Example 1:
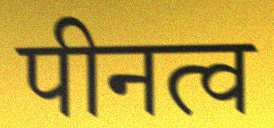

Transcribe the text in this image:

पीनत्व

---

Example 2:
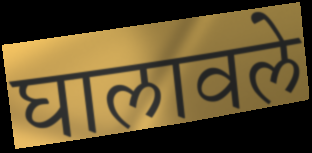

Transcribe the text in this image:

घालावले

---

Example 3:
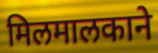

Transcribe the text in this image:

मिलमालकाने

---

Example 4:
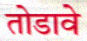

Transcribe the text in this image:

तोडावे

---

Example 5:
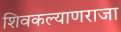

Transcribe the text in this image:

शिवकल्याणराजा